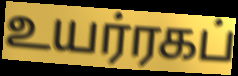
உயர்ரகப்